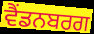
ਵੈਂਡਨਬਰਗ